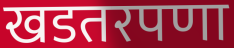
खडतरपणा